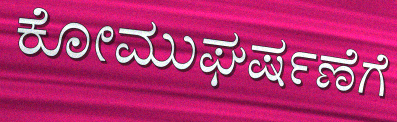
ಕೋಮುಘರ್ಷಣೆಗೆ